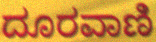
ದೂರವಾಣಿ